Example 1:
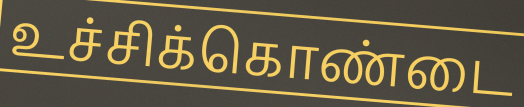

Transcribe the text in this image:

உச்சிக்கொண்டை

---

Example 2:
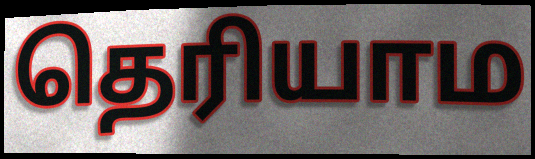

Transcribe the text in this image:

தெரியாம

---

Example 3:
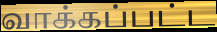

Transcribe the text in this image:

வாக்கப்பட்ட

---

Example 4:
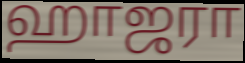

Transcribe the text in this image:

ஹாஜரா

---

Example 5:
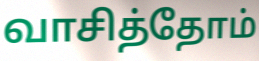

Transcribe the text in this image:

வாசித்தோம்